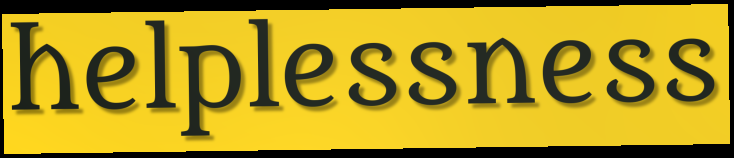
helplessness